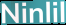
Ninlil